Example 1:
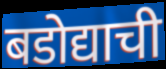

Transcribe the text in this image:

बडोद्याची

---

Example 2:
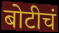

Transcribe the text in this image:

बोटीचं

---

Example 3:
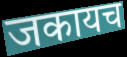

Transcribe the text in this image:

जकायच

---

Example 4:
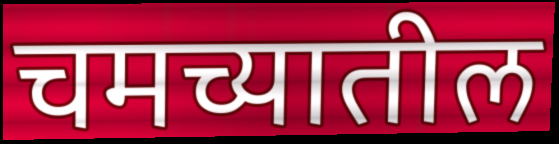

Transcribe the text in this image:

चमच्यातील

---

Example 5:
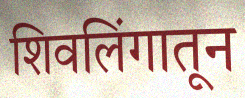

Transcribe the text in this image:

शिवलिंगातून